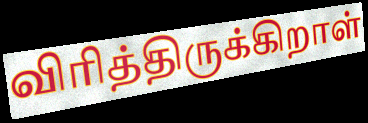
விரித்திருக்கிறாள்